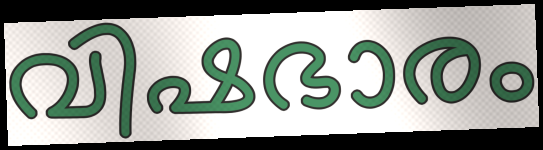
വിഷഭാരം